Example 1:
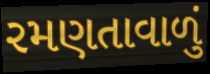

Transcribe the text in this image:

રમણતાવાળું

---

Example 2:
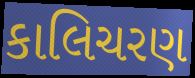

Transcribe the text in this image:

કાલિચરણ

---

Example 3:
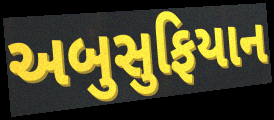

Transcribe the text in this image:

અબુસુફિયાન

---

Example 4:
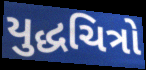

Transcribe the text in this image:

યુદ્ધચિત્રો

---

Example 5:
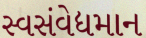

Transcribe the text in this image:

સ્વસંવેદ્યમાન